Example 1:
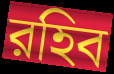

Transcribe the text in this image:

রহিব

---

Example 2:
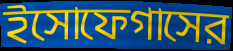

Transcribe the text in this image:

ইসোফেগাসের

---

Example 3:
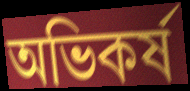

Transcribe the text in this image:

অভিকর্ষ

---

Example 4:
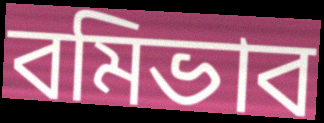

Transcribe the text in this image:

বমিভাব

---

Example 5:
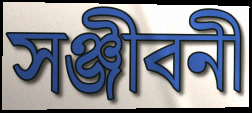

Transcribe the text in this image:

সঞ্জীবনী